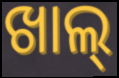
ଖାଲ୍